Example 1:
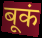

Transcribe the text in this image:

बूकं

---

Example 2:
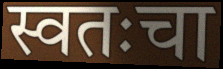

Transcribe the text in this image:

स्वतःचा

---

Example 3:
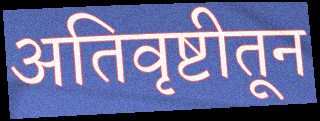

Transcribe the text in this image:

अतिवृष्टीतून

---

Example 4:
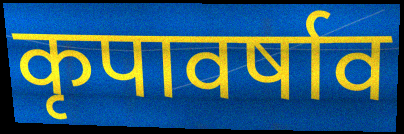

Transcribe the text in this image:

कृपावर्षाव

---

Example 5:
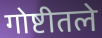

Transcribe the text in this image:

गोष्टीतले